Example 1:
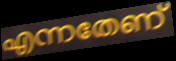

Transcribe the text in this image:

എന്നതേണ്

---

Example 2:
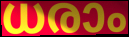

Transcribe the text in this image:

ധരാം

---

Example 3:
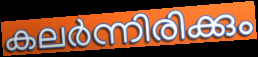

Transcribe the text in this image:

കലർന്നിരിക്കും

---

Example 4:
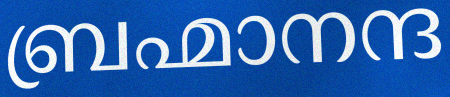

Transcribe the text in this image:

ബ്രഹ്മാനന്ദ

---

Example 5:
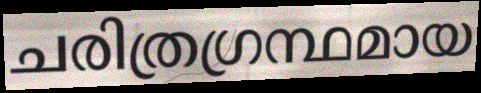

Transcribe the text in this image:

ചരിത്രഗ്രന്ഥമായ